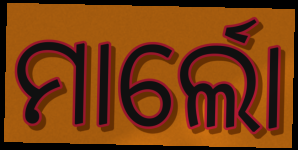
ମାର୍ଲୋ